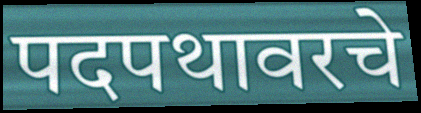
पदपथावरचे